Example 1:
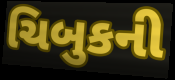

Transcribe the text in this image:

ચિબુકની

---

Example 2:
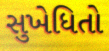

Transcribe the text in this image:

સુખેધિતો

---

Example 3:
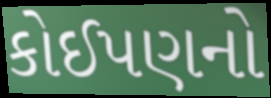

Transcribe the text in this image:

કોઈપણનો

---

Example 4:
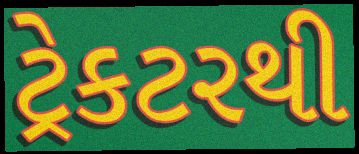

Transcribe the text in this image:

ટ્રેકટરથી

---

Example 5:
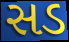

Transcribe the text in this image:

સડ